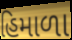
હિમાળા